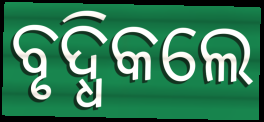
ବୃଦ୍ଧିକଲେ